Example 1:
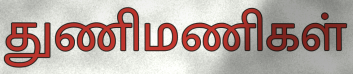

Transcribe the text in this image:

துணிமணிகள்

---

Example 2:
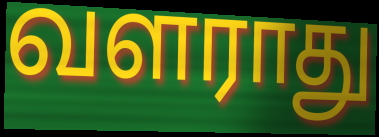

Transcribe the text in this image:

வளராது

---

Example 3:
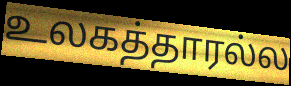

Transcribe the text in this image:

உலகத்தாரல்ல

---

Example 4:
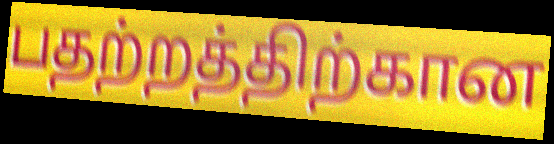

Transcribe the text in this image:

பதற்றத்திற்கான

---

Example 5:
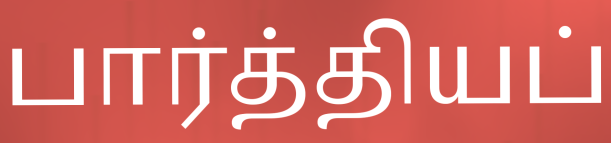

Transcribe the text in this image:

பார்த்தியப்